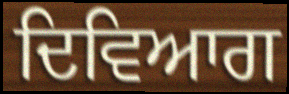
ਦਿਵਿਆਗ